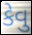
કેવુ